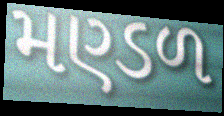
મણ્ડળ